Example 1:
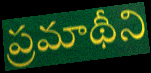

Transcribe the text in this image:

ప్రమాథీని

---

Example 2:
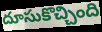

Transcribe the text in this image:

దూసుకొచ్చింది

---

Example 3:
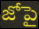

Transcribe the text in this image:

జోపై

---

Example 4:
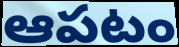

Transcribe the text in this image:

ఆపటం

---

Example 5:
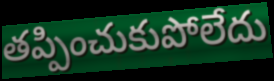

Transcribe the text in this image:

తప్పించుకుపోలేదు